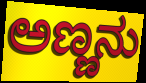
ಅಣ್ಣನು